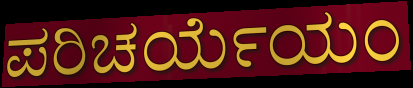
ಪರಿಚರ್ಯೆಯಂ